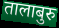
तालाबुरु